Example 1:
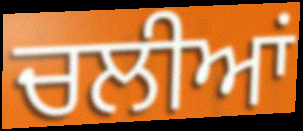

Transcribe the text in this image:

ਚਲੀਆਂ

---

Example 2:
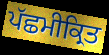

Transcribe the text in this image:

ਪੱਛਮੀਕ੍ਰਿਤ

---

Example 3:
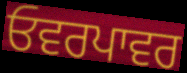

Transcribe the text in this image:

ਓਵਰਪਾਵਰ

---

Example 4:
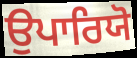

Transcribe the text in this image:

ਉਪਾਰਿਯੋ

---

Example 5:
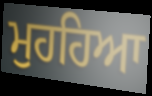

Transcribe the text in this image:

ਮੁਹਹਿਆ